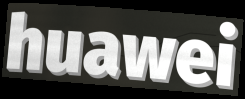
huawei